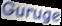
Guruge